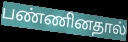
பண்ணினதால்